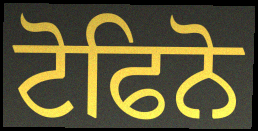
ਟੋਫਿਨੋ